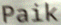
Paik